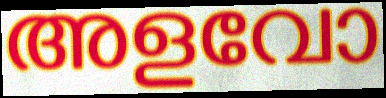
അളവോ